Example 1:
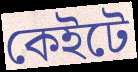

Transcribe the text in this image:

কেইটে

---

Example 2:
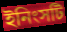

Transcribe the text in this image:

ইনিংসটি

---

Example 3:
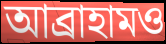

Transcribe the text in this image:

আব্রাহামও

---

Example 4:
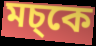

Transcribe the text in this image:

মচ্কে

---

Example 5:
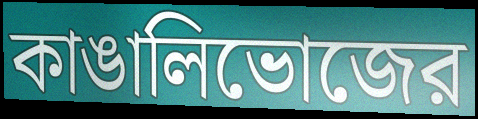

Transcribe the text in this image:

কাঙালিভোজের